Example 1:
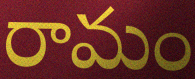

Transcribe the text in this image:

రామం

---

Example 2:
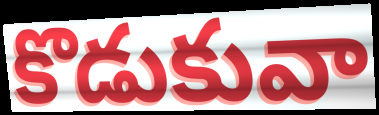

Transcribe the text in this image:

కొడుకువా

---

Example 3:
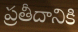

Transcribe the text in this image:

ప్రతీదానికి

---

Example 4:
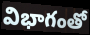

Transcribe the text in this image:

విభాగంతో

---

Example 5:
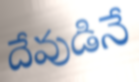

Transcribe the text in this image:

దేవుడినే